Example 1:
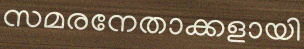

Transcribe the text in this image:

സമരനേതാക്കളായി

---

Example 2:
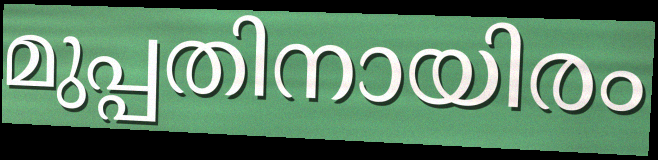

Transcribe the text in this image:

മുപ്പതിനായിരം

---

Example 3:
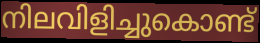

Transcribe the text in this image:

നിലവിളിച്ചുകൊണ്ട്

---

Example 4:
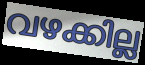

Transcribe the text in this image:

വഴക്കില്ല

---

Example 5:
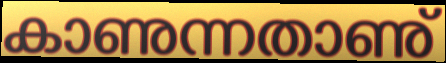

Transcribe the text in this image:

കാണുന്നതാണു്